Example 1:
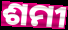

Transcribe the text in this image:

ଶମୀ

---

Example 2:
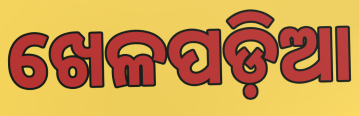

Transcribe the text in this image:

ଖେଳପଡ଼ିଆ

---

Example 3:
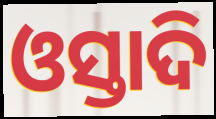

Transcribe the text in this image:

ଓସ୍ତାଦି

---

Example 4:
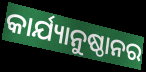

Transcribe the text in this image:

କାର୍ଯ୍ୟାନୁଷ୍ଠାନର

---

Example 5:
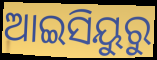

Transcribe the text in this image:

ଆଇସିୟୁରୁ